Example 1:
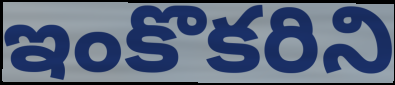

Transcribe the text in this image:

ఇంకొకరిని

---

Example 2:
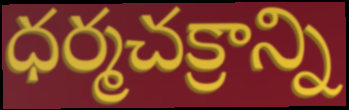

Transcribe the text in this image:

ధర్మచక్రాన్ని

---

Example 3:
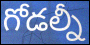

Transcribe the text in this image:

గోడల్నీ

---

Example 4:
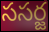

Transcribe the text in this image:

ససర్జ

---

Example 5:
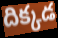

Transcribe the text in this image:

దిక్కడ